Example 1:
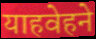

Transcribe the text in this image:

याहवेहने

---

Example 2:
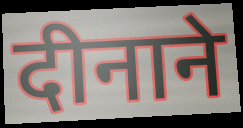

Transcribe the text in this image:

दीनाने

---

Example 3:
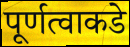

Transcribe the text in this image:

पूर्णत्वाकडे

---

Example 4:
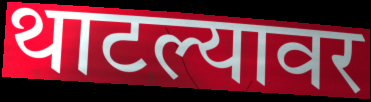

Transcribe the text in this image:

थाटल्यावर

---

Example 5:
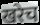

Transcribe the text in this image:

खरेच